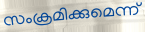
സംക്രമിക്കുമെന്ന്